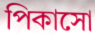
পিকাসো